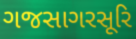
ગજસાગરસૂરિ